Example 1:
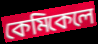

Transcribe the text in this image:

কেমিকেলে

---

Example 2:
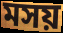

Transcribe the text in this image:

মসয়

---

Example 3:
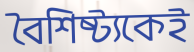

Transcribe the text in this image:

বৈশিষ্ট্যকেই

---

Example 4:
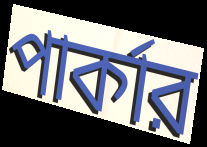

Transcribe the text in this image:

পার্কার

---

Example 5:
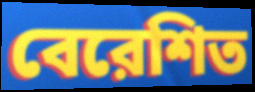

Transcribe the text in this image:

বেরেশিত